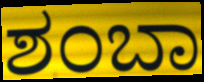
ಶಂಬಾ